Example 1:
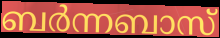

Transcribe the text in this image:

ബർന്നബാസ്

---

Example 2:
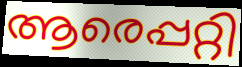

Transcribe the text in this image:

ആരെപ്പറ്റി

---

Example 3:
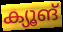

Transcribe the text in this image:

ക്യൂങ്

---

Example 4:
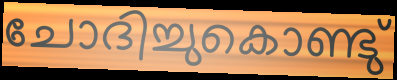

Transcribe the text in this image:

ചോദിച്ചുകൊണ്ടു്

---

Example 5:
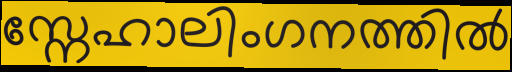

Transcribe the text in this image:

സ്നേഹാലിംഗനത്തിൽ